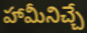
హామీనిచ్చే